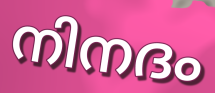
നിനദം